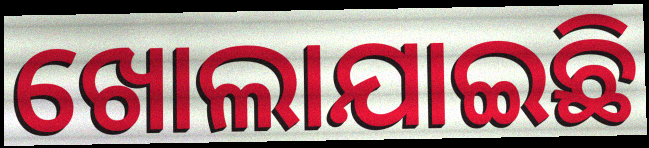
ଖୋଲାଯାଇଛି